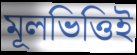
মূলভিত্তিই